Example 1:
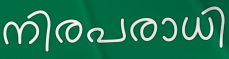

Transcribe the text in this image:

നിരപരാധി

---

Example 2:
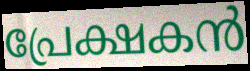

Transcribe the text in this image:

പ്രേക്ഷകൻ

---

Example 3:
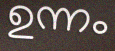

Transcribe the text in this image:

ഉന്നം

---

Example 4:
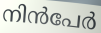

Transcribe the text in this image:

നിൻപേർ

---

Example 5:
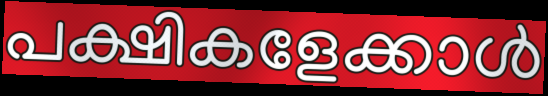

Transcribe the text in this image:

പക്ഷികളേക്കാൾ